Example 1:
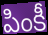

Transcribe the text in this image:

పింకీ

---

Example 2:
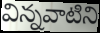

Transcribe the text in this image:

విన్నవాటిని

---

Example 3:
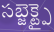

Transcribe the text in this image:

సబ్జెక్ట్పై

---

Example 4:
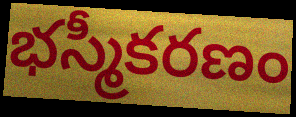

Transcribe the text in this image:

భస్మీకరణం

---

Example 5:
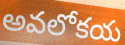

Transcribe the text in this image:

అవలోకయ